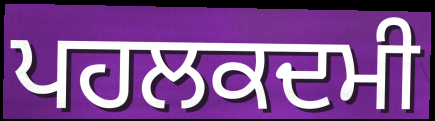
ਪਹਲਕਦਮੀ